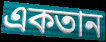
একতান